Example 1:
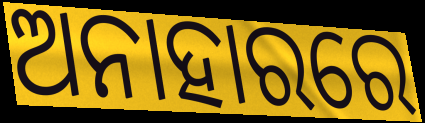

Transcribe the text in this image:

ଅନାହାରରେ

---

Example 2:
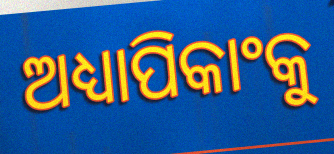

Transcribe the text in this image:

ଅଧ୍ୟାପିକାଂକୁ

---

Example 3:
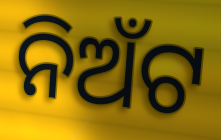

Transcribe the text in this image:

ନିଅଁଟ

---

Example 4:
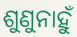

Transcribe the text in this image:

ଶୁଣୁନାହୁଁ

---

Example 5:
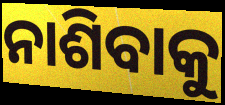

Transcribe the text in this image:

ନାଶିବାକୁ